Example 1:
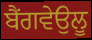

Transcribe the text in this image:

ਬੈਂਗਵੇਉਲੂ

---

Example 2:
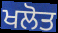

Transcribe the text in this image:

ਖਲੋਤ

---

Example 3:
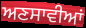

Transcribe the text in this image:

ਅਣਸਾਵੀਆਂ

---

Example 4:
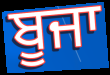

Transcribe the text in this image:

ਬੂਜਾ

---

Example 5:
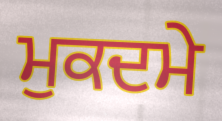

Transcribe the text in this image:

ਮੁਕਦਮੇ